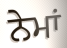
ਨੇਮਾਂ